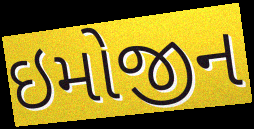
ઇમોજીન